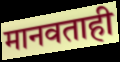
मानवताही